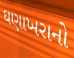
ઘણાખરાનો